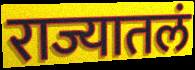
राज्यातलं